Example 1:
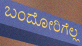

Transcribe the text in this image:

ಬಂದೋರಿಗೆಲ್ಲ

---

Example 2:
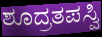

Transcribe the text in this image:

ಶೂದ್ರತಪಸ್ವಿ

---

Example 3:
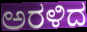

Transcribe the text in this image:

ಅರಳಿದ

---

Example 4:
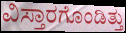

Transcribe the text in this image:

ವಿಸ್ತಾರಗೊಂಡಿತ್ತು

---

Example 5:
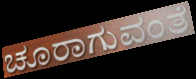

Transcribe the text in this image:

ಚೂರಾಗುವಂತೆ